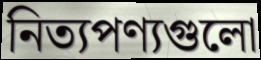
নিত্যপণ্যগুলো